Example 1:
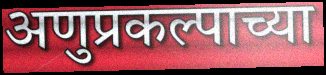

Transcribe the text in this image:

अणुप्रकल्पाच्या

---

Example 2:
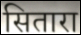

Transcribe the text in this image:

सितारा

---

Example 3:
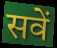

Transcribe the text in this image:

सवें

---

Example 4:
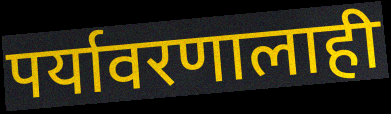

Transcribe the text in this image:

पर्यावरणालाही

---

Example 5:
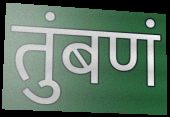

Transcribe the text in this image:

तुंबणं